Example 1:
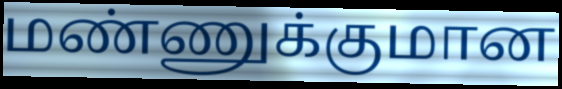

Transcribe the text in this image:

மண்ணுக்குமான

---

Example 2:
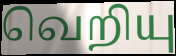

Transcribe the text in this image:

வெறியு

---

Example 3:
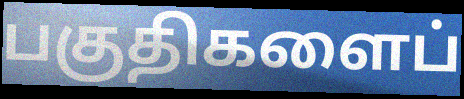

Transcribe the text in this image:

பகுதிகளைப்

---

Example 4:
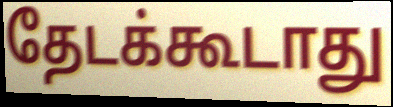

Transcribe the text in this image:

தேடக்கூடாது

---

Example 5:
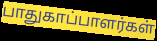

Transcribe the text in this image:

பாதுகாப்பாளர்கள்